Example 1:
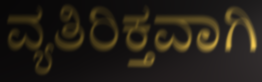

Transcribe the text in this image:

ವ್ಯತಿರಿಕ್ತವಾಗಿ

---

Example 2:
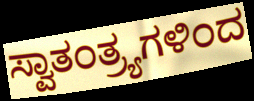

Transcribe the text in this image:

ಸ್ವಾತಂತ್ರ್ಯಗಳಿಂದ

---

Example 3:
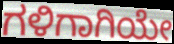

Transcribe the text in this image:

ಗಳಿಗಾಗಿಯೇ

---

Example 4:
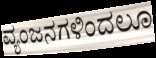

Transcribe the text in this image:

ವ್ಯಂಜನಗಳಿಂದಲೂ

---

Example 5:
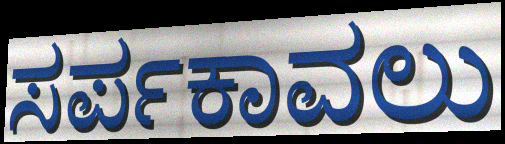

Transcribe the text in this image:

ಸರ್ಪಕಾವಲು